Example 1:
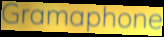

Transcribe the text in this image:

Gramaphone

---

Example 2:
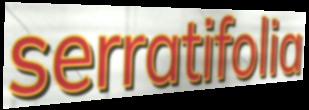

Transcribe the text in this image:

serratifolia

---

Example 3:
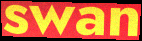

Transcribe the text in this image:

swan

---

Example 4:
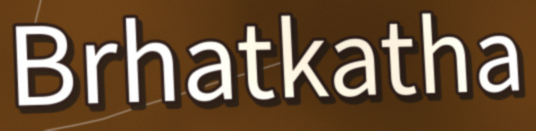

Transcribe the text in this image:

Brhatkatha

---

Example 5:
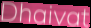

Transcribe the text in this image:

Dhaivat